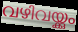
വഴിവയ്ക്കും